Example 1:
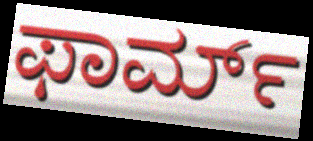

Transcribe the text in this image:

ಫಾರ್ಮ್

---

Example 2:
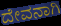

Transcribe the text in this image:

ದೇವನಾಗಿ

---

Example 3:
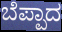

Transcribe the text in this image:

ಬೆಪ್ಪಾದ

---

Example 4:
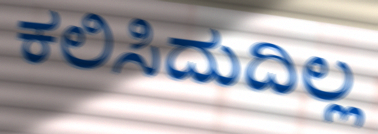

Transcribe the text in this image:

ಕಲಿಸಿದುದಿಲ್ಲ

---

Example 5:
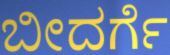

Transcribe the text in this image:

ಬೀದರ್ಗೆ